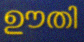
ഊതി